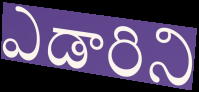
ఎడారిని